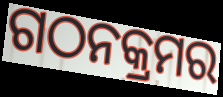
ଗଠନକ୍ରମର